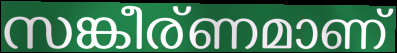
സങ്കീര്ണമാണ്